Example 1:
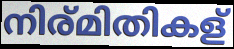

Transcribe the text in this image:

നിര്മിതികള്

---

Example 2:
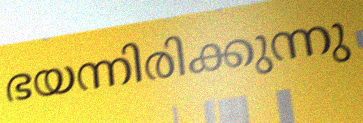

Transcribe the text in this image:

ഭയന്നിരിക്കുന്നു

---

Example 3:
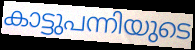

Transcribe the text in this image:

കാട്ടുപന്നിയുടെ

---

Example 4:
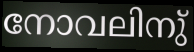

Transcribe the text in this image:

നോവലിനു്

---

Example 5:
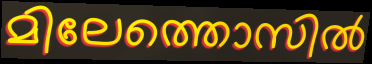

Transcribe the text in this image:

മിലേത്തൊസിൽ